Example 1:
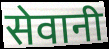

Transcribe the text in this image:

सेवानी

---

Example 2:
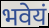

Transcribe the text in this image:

भवेयं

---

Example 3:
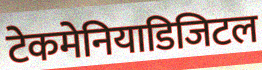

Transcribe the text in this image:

टेकमेनियाडिजिटल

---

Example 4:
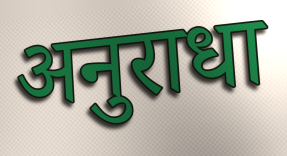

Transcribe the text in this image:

अनुराधा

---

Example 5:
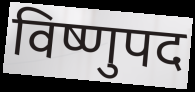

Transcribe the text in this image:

विष्णुपद